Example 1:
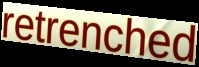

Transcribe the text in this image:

retrenched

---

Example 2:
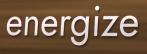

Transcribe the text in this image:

energize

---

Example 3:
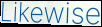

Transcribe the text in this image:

Likewise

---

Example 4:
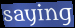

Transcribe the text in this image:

saying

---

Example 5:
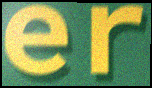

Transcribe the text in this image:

er